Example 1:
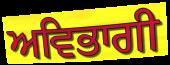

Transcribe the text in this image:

ਅਵਿਭਾਗੀ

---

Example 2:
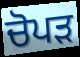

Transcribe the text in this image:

ਚੋਪੜ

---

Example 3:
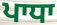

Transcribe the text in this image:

ਪਾਧਾ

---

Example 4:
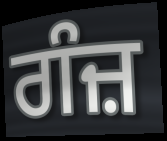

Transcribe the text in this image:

ਗੰਜ਼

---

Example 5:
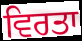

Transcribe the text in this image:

ਵਿਰਤਾ